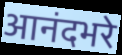
आनंदभरे